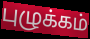
புழுக்கம்